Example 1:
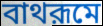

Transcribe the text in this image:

বাথরূমে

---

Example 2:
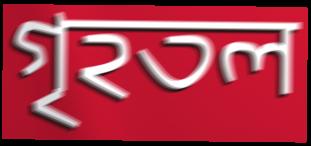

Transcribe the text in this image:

গৃহতল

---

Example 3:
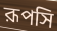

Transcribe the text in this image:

রূপসি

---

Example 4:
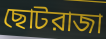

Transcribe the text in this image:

ছোটরাজা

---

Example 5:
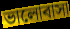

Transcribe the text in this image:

ভালোবাসা